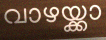
വാഴയ്ക്കാ